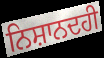
ਨਿਸ਼ਾਨਦਹੀ